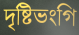
দৃষ্টিভংগি